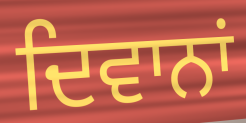
ਦਿਵਾਨਾਂ